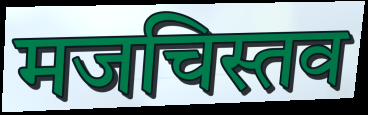
मजचिस्तव